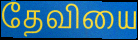
தேவியை